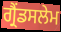
ਗ੍ਰੈਂਡਸਲੇਮ